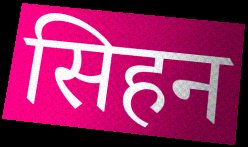
सिहन